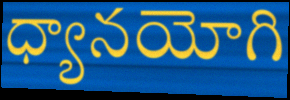
ధ్యానయోగి